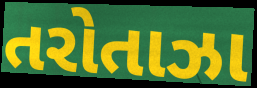
તરોતાઝા